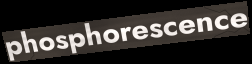
phosphorescence